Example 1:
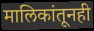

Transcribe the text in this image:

मालिकांतूनही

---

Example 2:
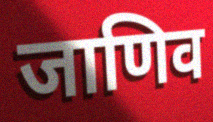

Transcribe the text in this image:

जाणिव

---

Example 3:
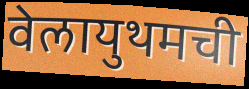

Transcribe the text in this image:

वेलायुथमची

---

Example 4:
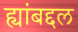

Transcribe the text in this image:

ह्यांबद्दल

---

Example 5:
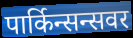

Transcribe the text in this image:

पार्किन्सन्सवर